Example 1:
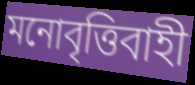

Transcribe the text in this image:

মনোবৃত্তিবাহী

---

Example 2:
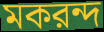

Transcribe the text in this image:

মকরন্দ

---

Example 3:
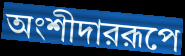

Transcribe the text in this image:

অংশীদাররূপে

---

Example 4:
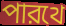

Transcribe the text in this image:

পারথে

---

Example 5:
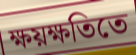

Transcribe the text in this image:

ক্ষয়ক্ষতিতে